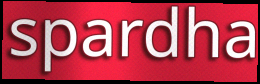
spardha